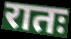
रातः